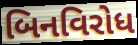
બિનવિરોધ